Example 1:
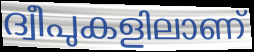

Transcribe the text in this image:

ദ്വീപുകളിലാണ്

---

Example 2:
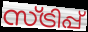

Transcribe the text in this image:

സ്ട്രിപ്പ്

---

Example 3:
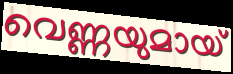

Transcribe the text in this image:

വെണ്ണയുമായ്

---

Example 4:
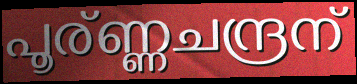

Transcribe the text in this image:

പൂര്ണ്ണചന്ദ്രന്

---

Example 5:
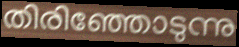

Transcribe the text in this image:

തിരിഞ്ഞോടുന്നു